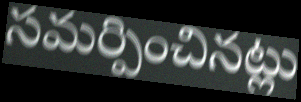
సమర్పించినట్లు